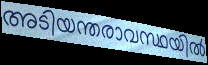
അടിയന്തരാവസ്ഥയിൽ